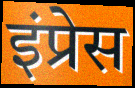
इंप्रेस